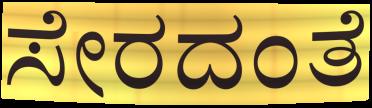
ಸೇರದಂತೆ